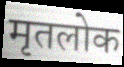
मृतलोक